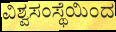
ವಿಶ್ವಸಂಸ್ಥೆಯಿಂದ